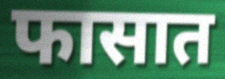
फासात